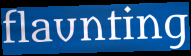
flaunting